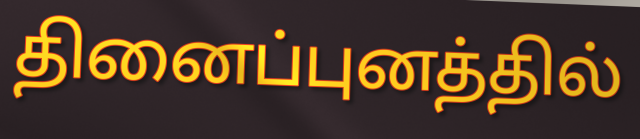
தினைப்புனத்தில்